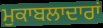
ਮੁਕਾਬਲਾਦਾਰਾਂ